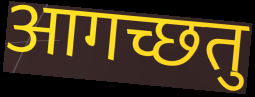
आगच्छतु